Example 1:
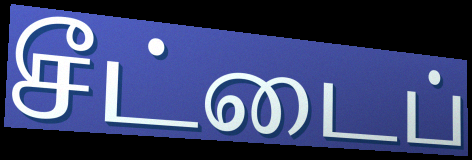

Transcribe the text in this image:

சீட்டைப்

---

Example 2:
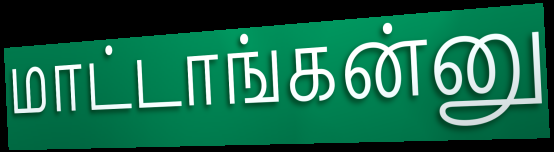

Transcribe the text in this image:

மாட்டாங்கன்னு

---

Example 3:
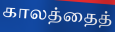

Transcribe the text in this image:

காலத்தைத்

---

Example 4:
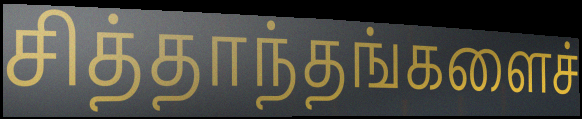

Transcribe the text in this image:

சித்தாந்தங்களைச்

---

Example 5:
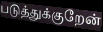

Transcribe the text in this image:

படுத்துக்குறேன்